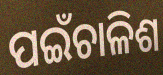
ପଇଁଚାଳିଶ